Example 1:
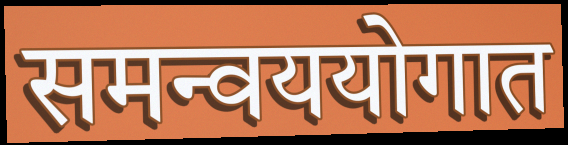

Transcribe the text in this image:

समन्वययोगात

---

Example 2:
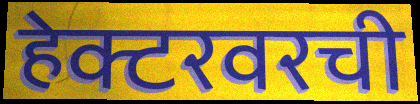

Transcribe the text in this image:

हेक्टरवरची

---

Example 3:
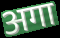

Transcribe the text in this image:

अगा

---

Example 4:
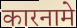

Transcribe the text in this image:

कारनामे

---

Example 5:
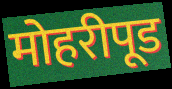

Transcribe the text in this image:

मोहरीपूड